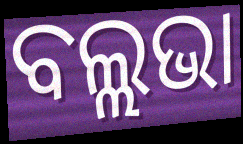
ବଲ୍ଲଭା